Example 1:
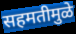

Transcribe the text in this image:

सहमतीमुळे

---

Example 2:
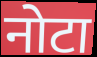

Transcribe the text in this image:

नोटा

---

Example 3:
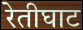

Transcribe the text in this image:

रेतीघाट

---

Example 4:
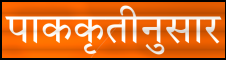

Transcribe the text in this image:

पाककृतीनुसार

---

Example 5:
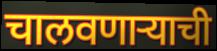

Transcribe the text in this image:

चालवणाऱ्याची